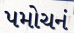
પમોચનં